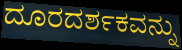
ದೂರದರ್ಶಕವನ್ನು